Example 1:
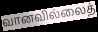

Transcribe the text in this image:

வானவில்லைத்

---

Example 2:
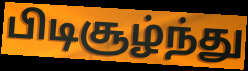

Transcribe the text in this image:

பிடிசூழ்ந்து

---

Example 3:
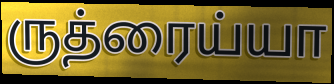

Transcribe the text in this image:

ருத்ரைய்யா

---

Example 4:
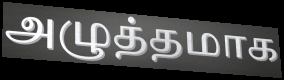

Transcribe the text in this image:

அழுத்தமாக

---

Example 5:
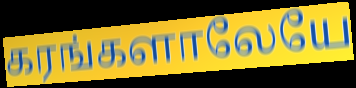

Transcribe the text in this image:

கரங்களாலேயே